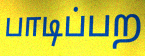
பாடிப்பற